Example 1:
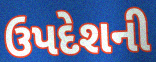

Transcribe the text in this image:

ઉપદેશની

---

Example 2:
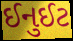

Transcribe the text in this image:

ઈનુઈટ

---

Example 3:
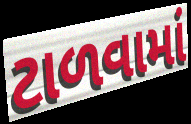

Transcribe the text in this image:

ટાળવામાં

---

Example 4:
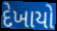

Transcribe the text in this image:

દેખાયો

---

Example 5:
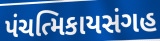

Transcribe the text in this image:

પંચત્મિકાયસંગહ